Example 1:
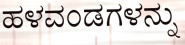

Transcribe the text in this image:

ಹಳವಂಡಗಳನ್ನು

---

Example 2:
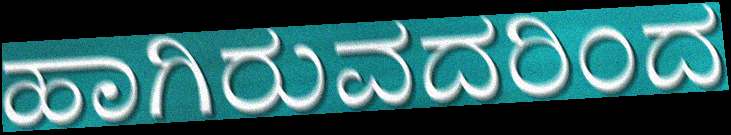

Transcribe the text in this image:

ಹಾಗಿರುವದರಿಂದ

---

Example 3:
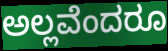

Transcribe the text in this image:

ಅಲ್ಲವೆಂದರೂ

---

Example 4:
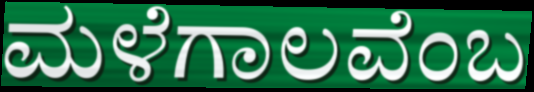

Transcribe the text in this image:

ಮಳೆಗಾಲವೆಂಬ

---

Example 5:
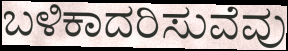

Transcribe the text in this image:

ಬಳಿಕಾದರಿಸುವೆವು